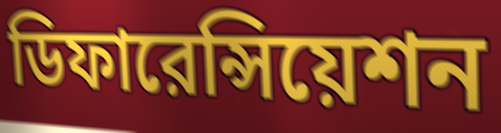
ডিফারেন্সিয়েশন